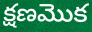
క్షణమొక